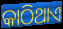
କାଠିଥାଏ